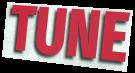
TUNE